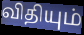
விதியும்